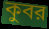
কুবর